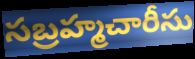
సబ్రహ్మచారీసు